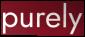
purely